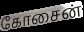
கோசைன்